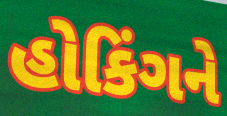
હોકિંગને